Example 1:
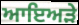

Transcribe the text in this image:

ਆਇਅੜੇ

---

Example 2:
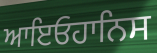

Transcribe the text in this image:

ਆਇਓਹਾਨਿਸ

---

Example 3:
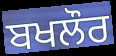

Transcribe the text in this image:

ਬਖਲੌਰ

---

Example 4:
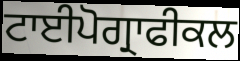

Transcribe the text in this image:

ਟਾਈਪੋਗ੍ਰਾਫੀਕਲ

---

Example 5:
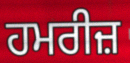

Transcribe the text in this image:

ਹਮਰੀਜ਼